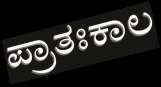
ಪ್ರಾತಃಕಾಲ